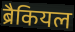
ब्रैकियल